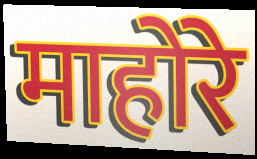
माहोरे